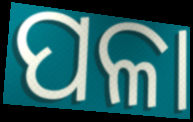
ପଳା